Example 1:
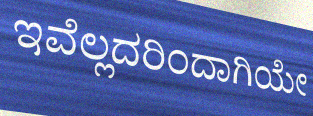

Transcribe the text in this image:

ಇವೆಲ್ಲದರಿಂದಾಗಿಯೇ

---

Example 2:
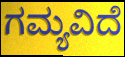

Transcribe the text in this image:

ಗಮ್ಯವಿದೆ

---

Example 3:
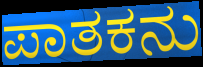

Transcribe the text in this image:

ಪಾತಕನು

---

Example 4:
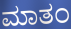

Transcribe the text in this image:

ಮಾತಂ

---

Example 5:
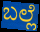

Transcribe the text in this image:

ಬಲ್ಲೆ